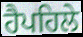
ਹੈਪਹਿਲੇ